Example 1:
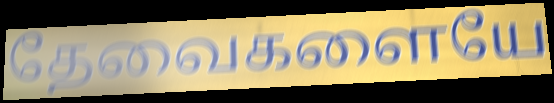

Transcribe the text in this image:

தேவைகளையே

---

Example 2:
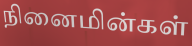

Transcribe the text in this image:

நினைமின்கள்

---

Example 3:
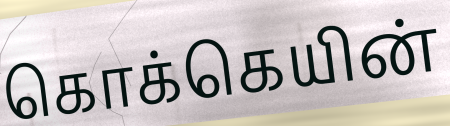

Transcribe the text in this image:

கொக்கெயின்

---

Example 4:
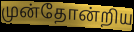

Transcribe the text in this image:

முன்தோன்றிய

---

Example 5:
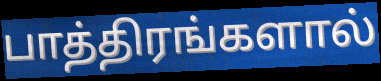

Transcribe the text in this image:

பாத்திரங்களால்